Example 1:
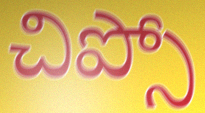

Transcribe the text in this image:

చిప్సో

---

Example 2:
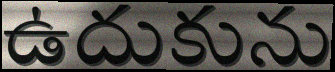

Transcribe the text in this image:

ఉదుకును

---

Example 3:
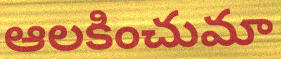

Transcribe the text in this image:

ఆలకించుమా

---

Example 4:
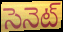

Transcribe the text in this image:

సెనెట్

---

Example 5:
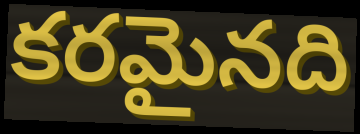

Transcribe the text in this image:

కరమైనది